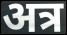
अत्र